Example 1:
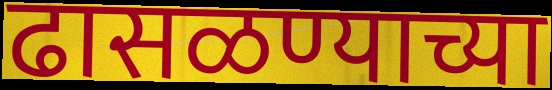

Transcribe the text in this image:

ढासळण्याच्या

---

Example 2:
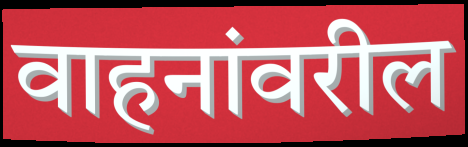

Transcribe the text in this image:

वाहनांवरील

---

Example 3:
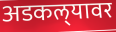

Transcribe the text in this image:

अडकल्यावर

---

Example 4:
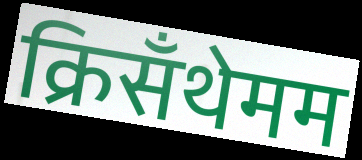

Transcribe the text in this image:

क्रिसँथेमम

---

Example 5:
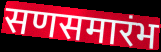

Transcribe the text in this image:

सणसमारंभ